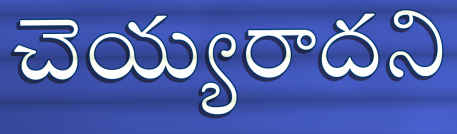
చెయ్యరాదని